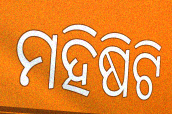
ମହିଷିଟି